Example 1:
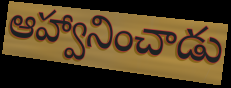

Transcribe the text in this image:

ఆహ్వానించాడు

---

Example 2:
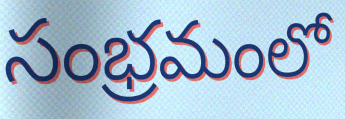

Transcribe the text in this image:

సంభ్రమంలో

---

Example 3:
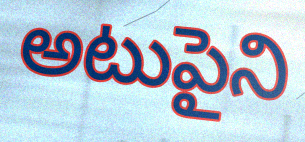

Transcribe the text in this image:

అటుపైని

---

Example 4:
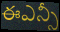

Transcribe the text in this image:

ఈఎన్సీ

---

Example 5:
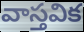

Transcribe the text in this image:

వాస్తవిక